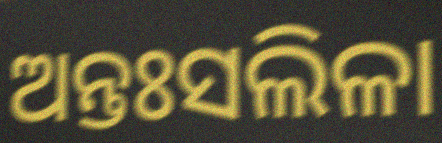
ଅନ୍ତଃସଲିଳା